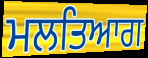
ਮਲਤਿਆਗ